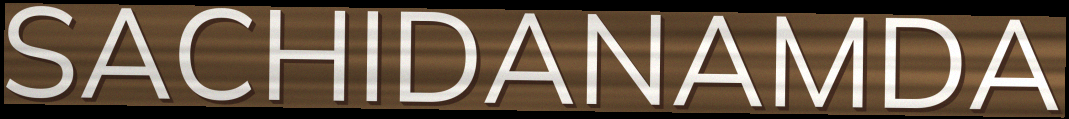
SACHIDANAMDA